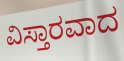
ವಿಸ್ತಾರವಾದ